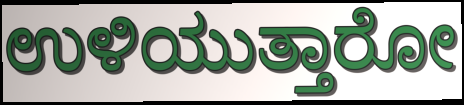
ಉಳಿಯುತ್ತಾರೋ